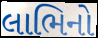
લાભિનો